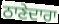
ਠਾਣੇਦਾਰਾ